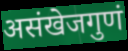
असंखेजगुणं